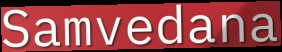
Samvedana